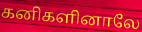
கனிகளினாலே